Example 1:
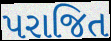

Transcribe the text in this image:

પરાજિત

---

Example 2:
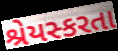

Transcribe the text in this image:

શ્રેયસ્કરતા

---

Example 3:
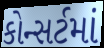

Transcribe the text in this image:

કોન્સર્ટમાં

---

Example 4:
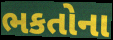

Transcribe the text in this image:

ભકતોના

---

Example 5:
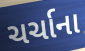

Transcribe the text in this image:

ચર્ચાના